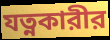
যত্নকারীর